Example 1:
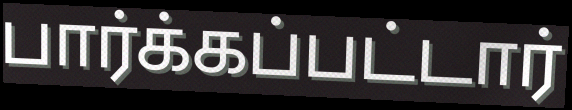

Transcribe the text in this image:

பார்க்கப்பட்டார்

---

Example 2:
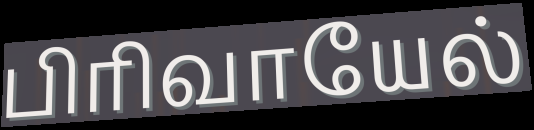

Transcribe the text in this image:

பிரிவாயேல்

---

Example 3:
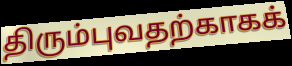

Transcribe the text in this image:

திரும்புவதற்காகக்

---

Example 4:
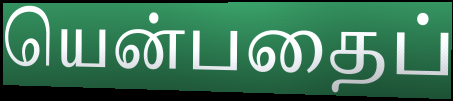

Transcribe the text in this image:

யென்பதைப்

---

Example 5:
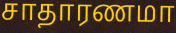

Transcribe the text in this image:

சாதாரணமா